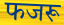
फजरू